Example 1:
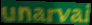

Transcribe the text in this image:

unarvai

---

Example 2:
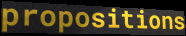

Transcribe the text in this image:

propositions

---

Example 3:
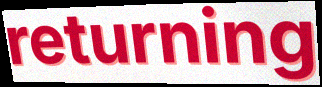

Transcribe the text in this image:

returning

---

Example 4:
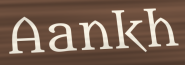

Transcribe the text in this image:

Aankh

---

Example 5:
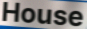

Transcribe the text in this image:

House